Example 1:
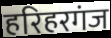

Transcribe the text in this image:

हरिहरगंज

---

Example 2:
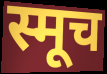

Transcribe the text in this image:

स्मूच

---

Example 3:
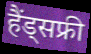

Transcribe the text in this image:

हैंड्सफ्री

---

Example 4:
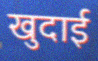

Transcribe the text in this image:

खुदाई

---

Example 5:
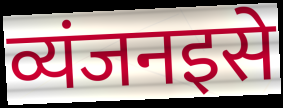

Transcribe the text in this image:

व्यंजनइसे